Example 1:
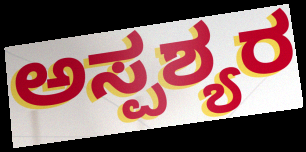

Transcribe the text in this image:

ಅಸ್ಪಶ್ಯರ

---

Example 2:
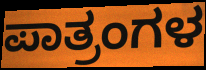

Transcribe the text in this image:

ಪಾತ್ರಂಗಳ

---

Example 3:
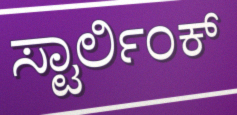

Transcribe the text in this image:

ಸ್ಟಾರ್ಲಿಂಕ್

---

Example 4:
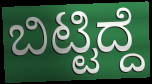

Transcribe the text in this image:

ಬಿಟ್ಟಿದ್ದೆ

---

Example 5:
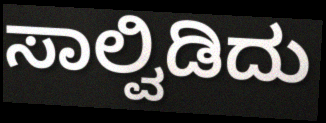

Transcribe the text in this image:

ಸಾಲ್ವಿಡಿದು